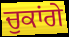
ਚੁਕਾਂਗੇ